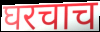
घरचाच